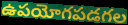
ఉపయోగపడగల